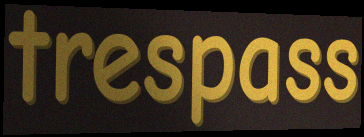
trespass